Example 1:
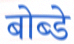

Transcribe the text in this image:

बोब्डे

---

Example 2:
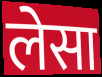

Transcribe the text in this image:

लेसा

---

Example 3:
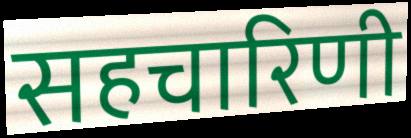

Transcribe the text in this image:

सहचारिणी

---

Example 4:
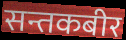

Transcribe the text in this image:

सन्तकबीर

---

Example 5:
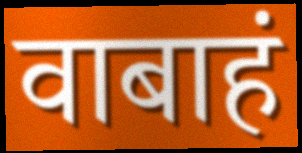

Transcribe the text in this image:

वाबाहं